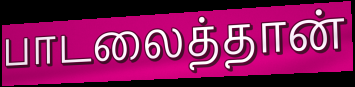
பாடலைத்தான்